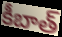
కీబాత్